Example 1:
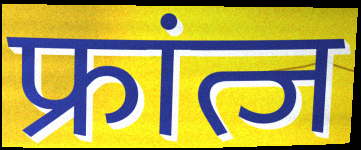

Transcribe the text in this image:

फ्रांत्ज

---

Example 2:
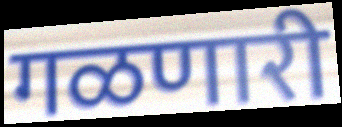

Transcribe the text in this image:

गळणारी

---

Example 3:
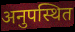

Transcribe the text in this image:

अनुपस्थित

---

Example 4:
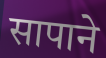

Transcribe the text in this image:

सापाने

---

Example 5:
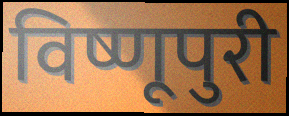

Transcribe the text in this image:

विष्णूपुरी